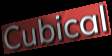
Cubical